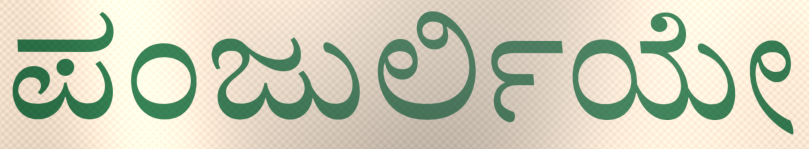
ಪಂಜುರ್ಲಿಯೇ